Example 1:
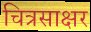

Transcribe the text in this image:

चित्रसाक्षर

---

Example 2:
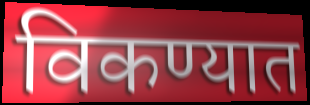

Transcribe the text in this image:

विकण्यात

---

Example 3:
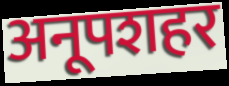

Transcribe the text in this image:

अनूपशहर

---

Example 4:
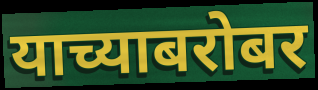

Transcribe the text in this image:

याच्याबरोबर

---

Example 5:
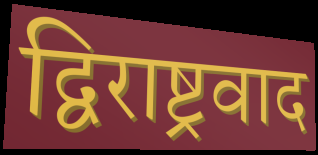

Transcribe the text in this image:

द्विराष्ट्रवाद